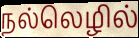
நல்லெழில்